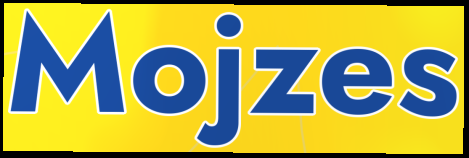
Mojzes